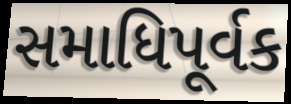
સમાધિપૂર્વક